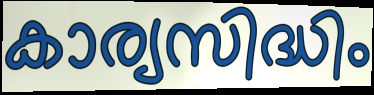
കാര്യസിദ്ധിം